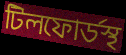
টিলফোর্ডস্থ